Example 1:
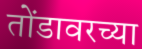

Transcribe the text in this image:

तोंडावरच्या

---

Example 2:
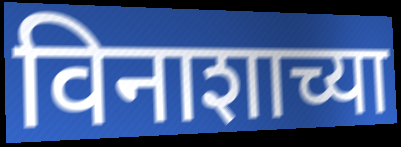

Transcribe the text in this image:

विनाशाच्या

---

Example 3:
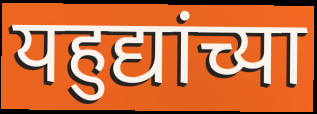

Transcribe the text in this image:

यहुद्यांच्या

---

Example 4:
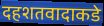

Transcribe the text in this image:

दहशतवादाकडे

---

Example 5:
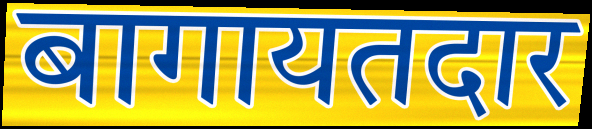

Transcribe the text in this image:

बागायतदार